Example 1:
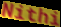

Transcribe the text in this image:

Nithi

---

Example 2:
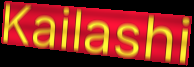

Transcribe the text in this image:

Kailashi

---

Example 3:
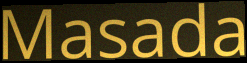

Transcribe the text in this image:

Masada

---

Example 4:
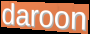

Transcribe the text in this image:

daroon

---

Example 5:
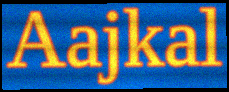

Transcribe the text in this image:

Aajkal